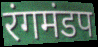
रंगमंडप